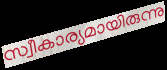
സ്വീകാര്യമായിരുന്നു